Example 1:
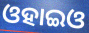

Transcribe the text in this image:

ଓହାଇଓ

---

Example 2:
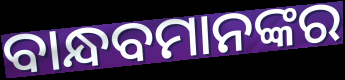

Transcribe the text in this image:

ବାନ୍ଧବମାନଙ୍କର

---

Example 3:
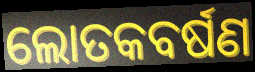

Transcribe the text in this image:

ଲୋତକବର୍ଷଣ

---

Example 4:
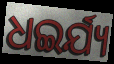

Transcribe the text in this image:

ଧଇର୍ଯ୍ୟ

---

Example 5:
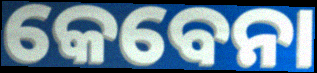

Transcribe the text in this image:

କେବେନା